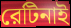
রেটিনাই